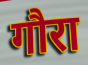
गौरा